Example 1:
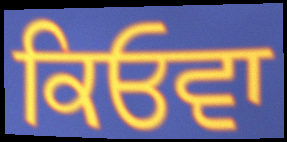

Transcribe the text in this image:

ਕਿਓਵਾ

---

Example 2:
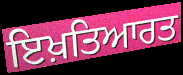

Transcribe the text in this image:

ਇਖ਼ਤਿਆਰਤ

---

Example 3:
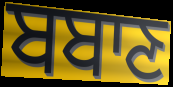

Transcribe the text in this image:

ਬਬਾਣ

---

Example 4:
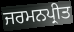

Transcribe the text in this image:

ਜਰਮਨਪ੍ਰੀਤ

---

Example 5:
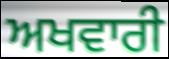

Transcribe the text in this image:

ਅਖਵਾਰੀ